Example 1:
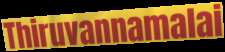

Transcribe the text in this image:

Thiruvannamalai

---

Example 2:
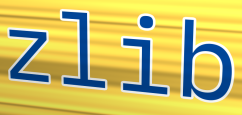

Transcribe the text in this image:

zlib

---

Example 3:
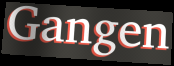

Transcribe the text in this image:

Gangen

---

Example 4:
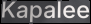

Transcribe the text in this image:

Kapalee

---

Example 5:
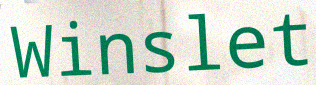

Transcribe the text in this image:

Winslet